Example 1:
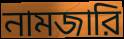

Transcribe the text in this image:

নামজারি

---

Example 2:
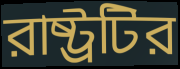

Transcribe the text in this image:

রাষ্ট্রটির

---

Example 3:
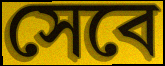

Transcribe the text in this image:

সেবে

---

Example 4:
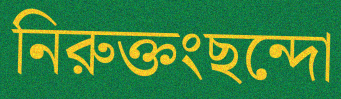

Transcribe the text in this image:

নিরুক্তংছন্দো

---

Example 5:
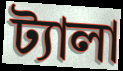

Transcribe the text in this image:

ট্যালা